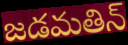
జడమతిన్